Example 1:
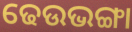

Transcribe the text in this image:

ଢେଉଭଙ୍ଗା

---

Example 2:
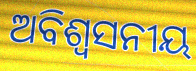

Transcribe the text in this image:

ଅବିଶ୍ବସନୀୟ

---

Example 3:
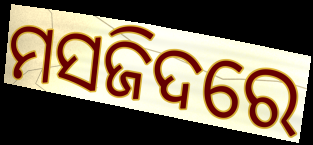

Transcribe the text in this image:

ମସଜିଦରେ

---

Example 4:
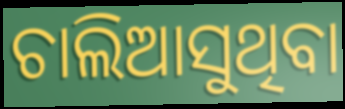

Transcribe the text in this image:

ଚାଲିଆସୁଥିବା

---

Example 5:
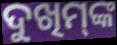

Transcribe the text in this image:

ଦୁଖିମ୍‌ଙ୍କ